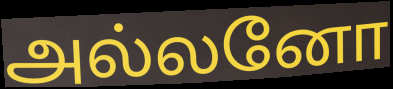
அல்லனோ